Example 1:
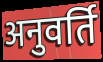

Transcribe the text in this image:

अनुवर्ति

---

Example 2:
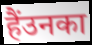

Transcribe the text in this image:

हैंउनका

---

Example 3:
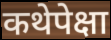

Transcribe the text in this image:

कथेपेक्षा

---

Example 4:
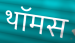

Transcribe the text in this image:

थॉमस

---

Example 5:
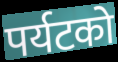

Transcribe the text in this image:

पर्यटको